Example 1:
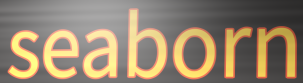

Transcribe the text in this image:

seaborn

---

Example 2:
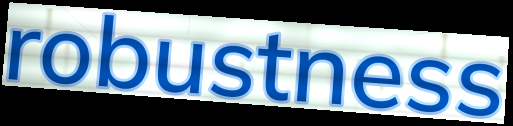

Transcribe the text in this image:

robustness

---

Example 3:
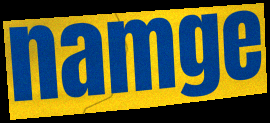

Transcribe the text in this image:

namge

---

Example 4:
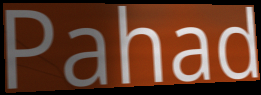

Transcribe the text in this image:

Pahad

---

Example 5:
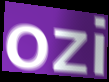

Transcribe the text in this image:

ozi